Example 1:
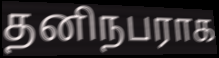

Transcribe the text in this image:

தனிநபராக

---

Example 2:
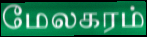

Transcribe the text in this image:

மேலகரம்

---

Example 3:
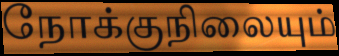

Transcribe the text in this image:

நோக்குநிலையும்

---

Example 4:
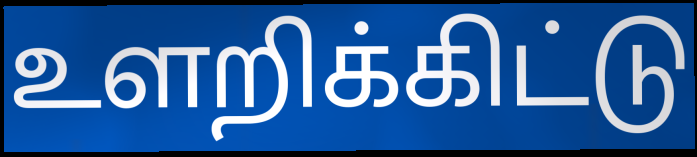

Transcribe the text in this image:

உளறிக்கிட்டு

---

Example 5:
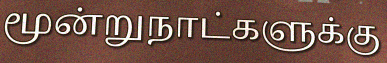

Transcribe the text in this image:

மூன்றுநாட்களுக்கு